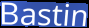
Bastin